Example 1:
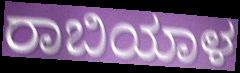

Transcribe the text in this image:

ರಾಬಿಯಾಳ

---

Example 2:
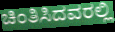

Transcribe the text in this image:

ಚಿಂತಿಸಿದವರಲ್ಲಿ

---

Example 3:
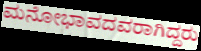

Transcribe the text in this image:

ಮನೋಭಾವದವರಾಗಿದ್ದರು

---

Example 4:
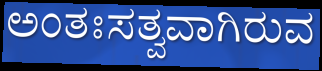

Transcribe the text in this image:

ಅಂತಃಸತ್ವವಾಗಿರುವ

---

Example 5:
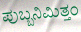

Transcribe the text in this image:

ಪುಬ್ಬನಿಮಿತ್ತಂ